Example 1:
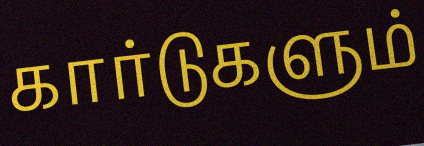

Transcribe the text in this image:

கார்டுகளும்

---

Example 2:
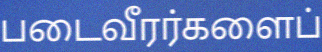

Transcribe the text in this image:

படைவீரர்களைப்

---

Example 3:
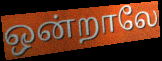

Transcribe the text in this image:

ஒன்றாலே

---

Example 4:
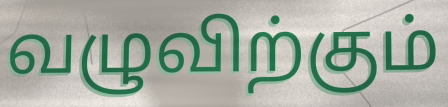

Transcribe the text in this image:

வழுவிற்கும்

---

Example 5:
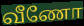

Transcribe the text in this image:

வீணோ